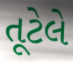
તૂટેલે